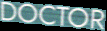
DOCTOR